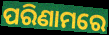
ପରିଣାମରେ